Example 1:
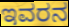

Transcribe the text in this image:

ಇವರನ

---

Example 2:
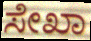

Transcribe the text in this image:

ಸೇಖಾ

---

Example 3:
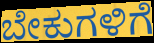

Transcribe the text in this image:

ಬೇಕುಗಳಿಗೆ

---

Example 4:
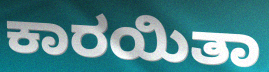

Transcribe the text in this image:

ಕಾರಯಿತಾ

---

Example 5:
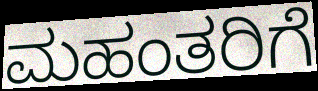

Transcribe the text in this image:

ಮಹಂತರಿಗೆ